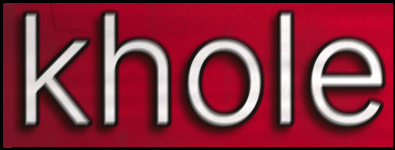
khole